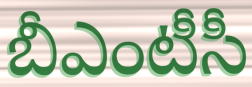
బీఎంటీసీ